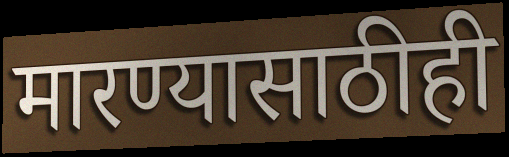
मारण्यासाठीही